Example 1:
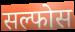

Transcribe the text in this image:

सल्फोस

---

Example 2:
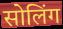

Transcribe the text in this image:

सोलिंग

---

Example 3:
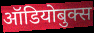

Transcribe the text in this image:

ऑडियोबुक्स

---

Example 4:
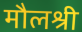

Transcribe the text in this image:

मौलश्री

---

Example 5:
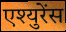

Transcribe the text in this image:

एश्युरेंस